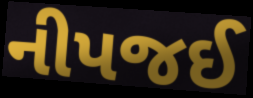
નીપજઈ